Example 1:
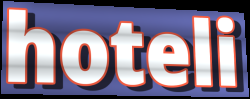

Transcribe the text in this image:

hoteli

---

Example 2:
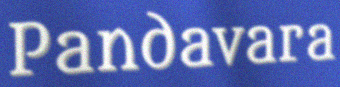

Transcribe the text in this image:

Pandavara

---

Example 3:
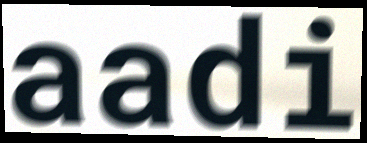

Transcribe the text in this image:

aadi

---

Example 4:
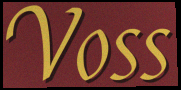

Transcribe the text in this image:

Voss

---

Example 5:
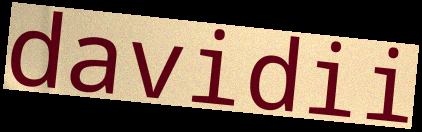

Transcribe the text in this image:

davidii